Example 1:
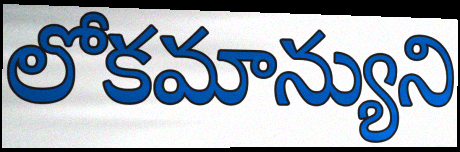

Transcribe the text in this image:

లోకమాన్యుని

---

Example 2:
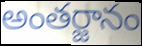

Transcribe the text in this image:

అంతర్జానం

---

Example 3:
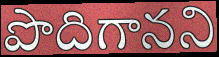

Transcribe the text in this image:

పొదిగానని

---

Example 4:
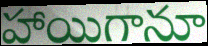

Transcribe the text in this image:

హాయిగానూ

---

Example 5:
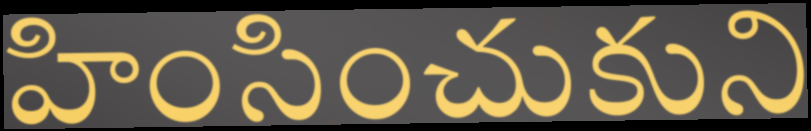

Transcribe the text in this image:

హింసించుకుని